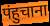
पंहुचाना